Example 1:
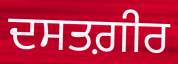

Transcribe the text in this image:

ਦਸਤਗ਼ੀਰ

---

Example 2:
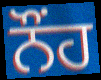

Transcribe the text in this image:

ਨੌੰਹ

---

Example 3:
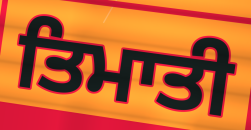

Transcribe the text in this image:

ਤਿਮਾਤੀ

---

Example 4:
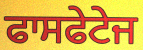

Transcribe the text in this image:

ਫਾਸਫੇਟੇਜ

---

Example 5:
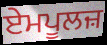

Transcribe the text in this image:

ਏਮਪੂਲਜ਼